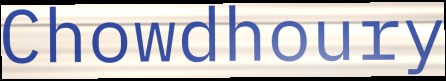
Chowdhoury